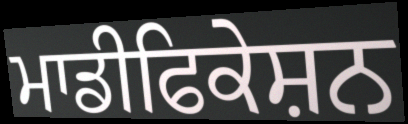
ਮਾਡੀਫਿਕੇਸ਼ਨ